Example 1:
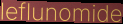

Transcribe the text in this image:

leflunomide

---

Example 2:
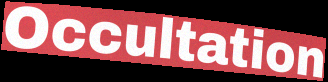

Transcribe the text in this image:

Occultation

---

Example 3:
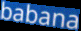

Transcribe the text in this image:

babana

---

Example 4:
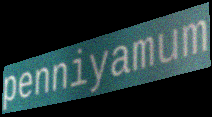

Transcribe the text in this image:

penniyamum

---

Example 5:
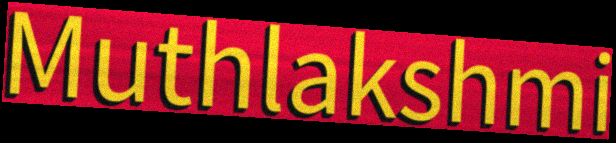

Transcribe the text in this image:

Muthlakshmi